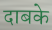
दाबके